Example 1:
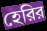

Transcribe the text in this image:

হেরির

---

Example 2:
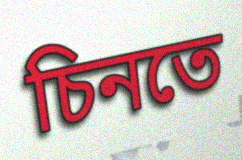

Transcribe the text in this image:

চিনতে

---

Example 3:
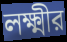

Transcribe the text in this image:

লক্ষ্মীর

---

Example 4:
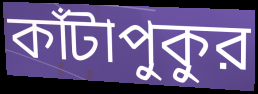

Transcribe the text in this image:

কাঁটাপুকুর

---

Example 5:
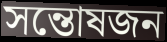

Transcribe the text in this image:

সন্তোষজন